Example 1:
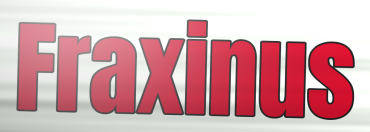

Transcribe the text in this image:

Fraxinus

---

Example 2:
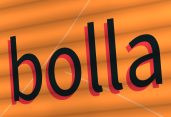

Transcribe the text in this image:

bolla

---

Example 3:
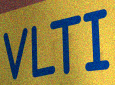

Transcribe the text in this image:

VLTI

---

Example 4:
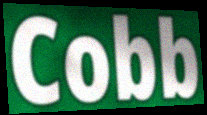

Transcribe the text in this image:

Cobb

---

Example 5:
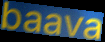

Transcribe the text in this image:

baava